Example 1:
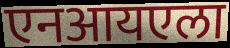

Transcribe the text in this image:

एनआयएला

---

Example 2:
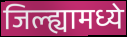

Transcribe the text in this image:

जिल्ह्यामध्ये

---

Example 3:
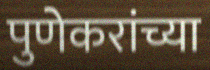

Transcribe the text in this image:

पुणेकरांच्या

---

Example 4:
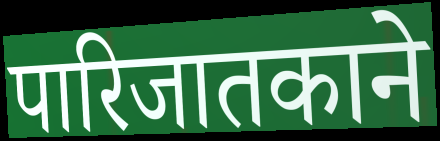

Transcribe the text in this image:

पारिजातकाने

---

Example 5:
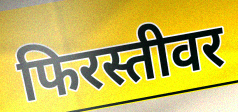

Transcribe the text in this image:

फिरस्तीवर